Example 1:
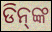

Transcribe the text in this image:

ଡିନ୍‍ଙ୍କ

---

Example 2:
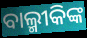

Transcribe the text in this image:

ବାଲ୍ମୀକିଙ୍କ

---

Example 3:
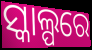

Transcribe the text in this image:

ସ୍କାଲ୍ପରେ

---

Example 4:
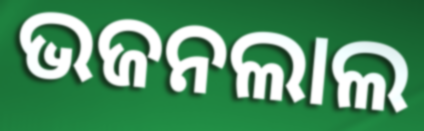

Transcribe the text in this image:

ଭଜନଲାଲ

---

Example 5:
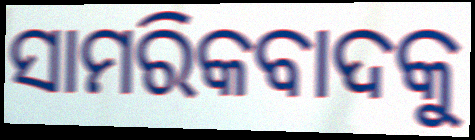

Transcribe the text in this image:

ସାମରିକବାଦକୁ